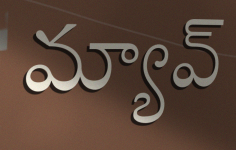
మ్యావ్